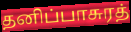
தனிப்பாசுரத்